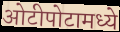
ओटीपोटामध्ये